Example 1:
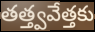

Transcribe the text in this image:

తత్త్వవేత్తకు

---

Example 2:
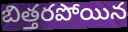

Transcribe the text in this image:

బిత్తరపోయిన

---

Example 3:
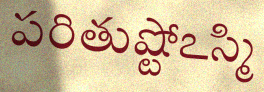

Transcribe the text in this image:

పరితుష్టోఽస్మి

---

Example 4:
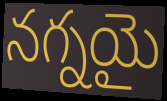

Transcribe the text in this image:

నగ్నయై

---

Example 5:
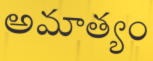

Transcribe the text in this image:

అమాత్యం